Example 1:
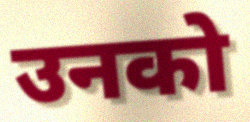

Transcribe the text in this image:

उनको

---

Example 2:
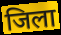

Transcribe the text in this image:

जिला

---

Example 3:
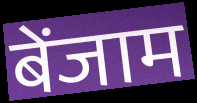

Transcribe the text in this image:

बेंजाम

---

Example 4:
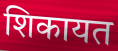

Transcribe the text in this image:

शिकायत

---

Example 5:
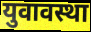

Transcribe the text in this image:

युवावस्था